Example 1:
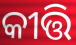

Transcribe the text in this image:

କୀତ୍ତି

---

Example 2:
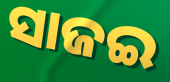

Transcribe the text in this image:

ସାଜଇ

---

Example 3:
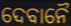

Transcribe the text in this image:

ଦେବାନୈ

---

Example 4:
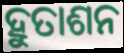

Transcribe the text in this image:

ହୁତାଶନ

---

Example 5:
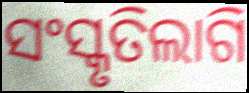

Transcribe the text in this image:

ସଂସ୍କୃତିଲାଗି